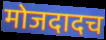
मोजदादच